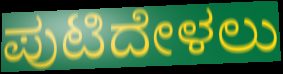
ಪುಟಿದೇಳಲು